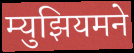
म्युझियमने